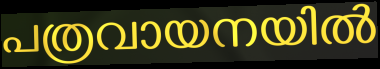
പത്രവായനയിൽ